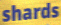
shards